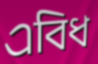
এবিধ